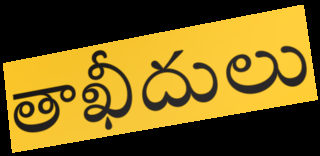
తాఖీదులు